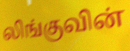
லிங்குவின்